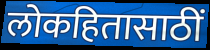
लोकहितासाठीं